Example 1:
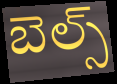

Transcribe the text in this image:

బెల్స్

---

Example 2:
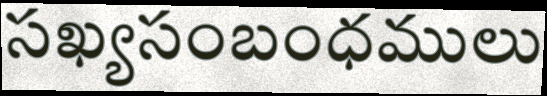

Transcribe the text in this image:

సఖ్యసంబంధములు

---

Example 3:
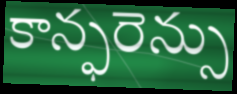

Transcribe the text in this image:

కాన్ఫరెన్సు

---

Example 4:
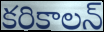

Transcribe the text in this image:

కరికాలన్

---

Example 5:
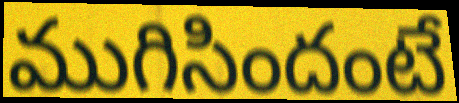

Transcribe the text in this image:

ముగిసిందంటే